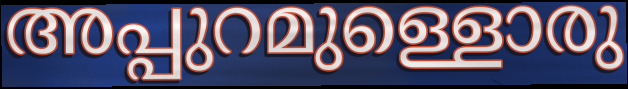
അപ്പുറമുള്ളൊരു